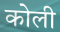
कोली